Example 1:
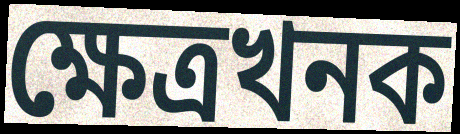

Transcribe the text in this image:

ক্ষেত্ৰখনক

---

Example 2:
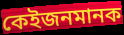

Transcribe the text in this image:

কেইজনমানক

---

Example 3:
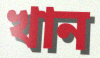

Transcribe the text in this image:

খান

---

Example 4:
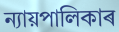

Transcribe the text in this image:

ন্যায়পালিকাৰ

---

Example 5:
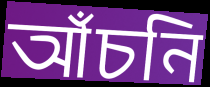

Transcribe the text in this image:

আঁচনি